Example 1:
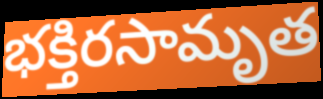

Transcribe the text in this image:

భక్తిరసామృత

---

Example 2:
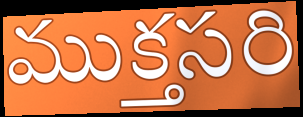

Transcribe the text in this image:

ముక్తసరి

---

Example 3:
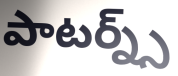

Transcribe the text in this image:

పాటర్న్స్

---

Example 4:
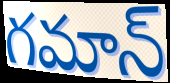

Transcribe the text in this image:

గమాన్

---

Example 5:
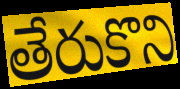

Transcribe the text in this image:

తేరుకొని